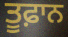
ਤੂਫ਼ਾਨ